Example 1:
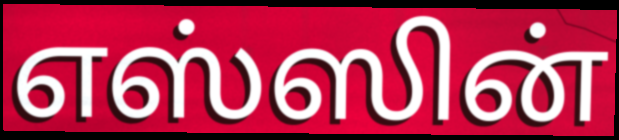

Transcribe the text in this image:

எஸ்ஸின்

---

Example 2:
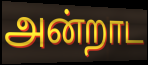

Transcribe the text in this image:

அன்றாட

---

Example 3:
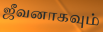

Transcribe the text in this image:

ஜீவனாகவும்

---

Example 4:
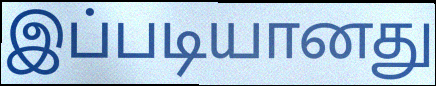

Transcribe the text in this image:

இப்படியானது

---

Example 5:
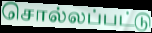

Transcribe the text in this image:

சொல்லப்பட்டு